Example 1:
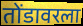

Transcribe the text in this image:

तोंडावरला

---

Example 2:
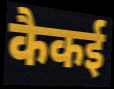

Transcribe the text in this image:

कैकई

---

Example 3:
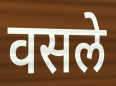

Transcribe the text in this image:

वसले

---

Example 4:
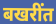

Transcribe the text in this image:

बखरींत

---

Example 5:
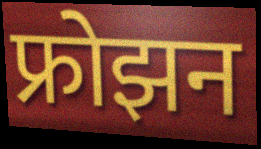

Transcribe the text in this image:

फ्रोझन